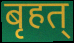
बृहत्